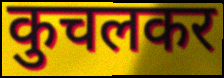
कुचलकर